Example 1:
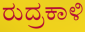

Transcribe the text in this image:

ರುದ್ರಕಾಳಿ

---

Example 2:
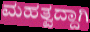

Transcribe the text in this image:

ಮಹತ್ವದ್ದಾಗಿ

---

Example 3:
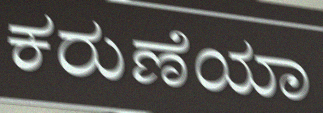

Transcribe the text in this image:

ಕರುಣೆಯಾ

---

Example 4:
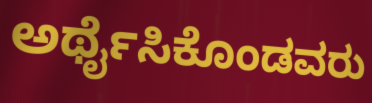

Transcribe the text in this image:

ಅರ್ಥೈಸಿಕೊಂಡವರು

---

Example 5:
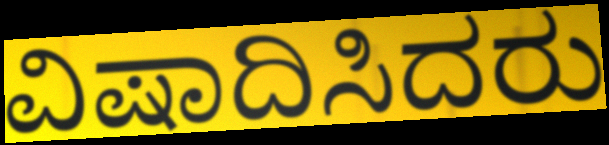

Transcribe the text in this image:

ವಿಷಾದಿಸಿದರು